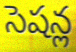
సెషన్ల